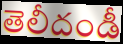
తెలీదండీ